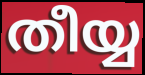
തീയ്യ